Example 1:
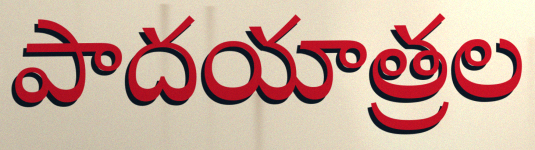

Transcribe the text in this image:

పాదయాత్రల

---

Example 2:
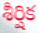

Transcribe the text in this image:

శీర్షిక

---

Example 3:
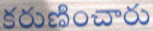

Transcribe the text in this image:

కరుణించారు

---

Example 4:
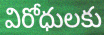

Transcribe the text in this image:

విరోధులకు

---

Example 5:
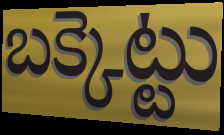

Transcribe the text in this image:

బక్కెట్టు